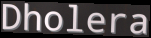
Dholera